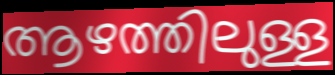
ആഴത്തിലുള്ള